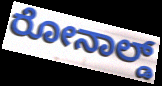
ರೋನಾಲ್ಡ್